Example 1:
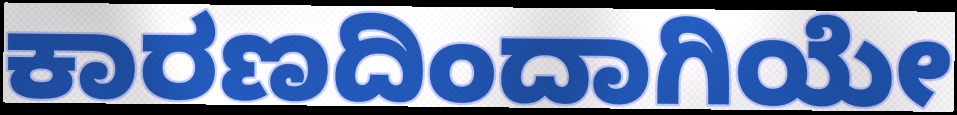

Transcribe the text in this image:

ಕಾರಣದಿಂದಾಗಿಯೇ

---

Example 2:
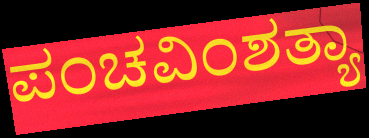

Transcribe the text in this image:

ಪಂಚವಿಂಶತ್ಯಾ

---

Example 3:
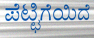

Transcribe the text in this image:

ಪೆಟ್ಟಿಗೆಯಿದೆ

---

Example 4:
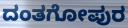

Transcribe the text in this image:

ದಂತಗೋಪುರ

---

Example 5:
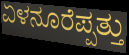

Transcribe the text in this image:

ಏಳನೂರೆಪ್ಪತ್ತು